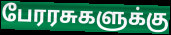
பேரரசுகளுக்கு